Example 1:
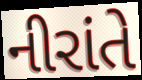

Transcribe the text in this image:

નીરાંતે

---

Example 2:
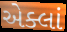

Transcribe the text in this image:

એક્લાં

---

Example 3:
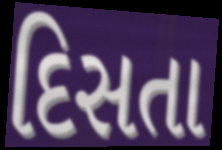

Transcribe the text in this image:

દિસતા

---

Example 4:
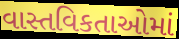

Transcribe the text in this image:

વાસ્તવિકતાઓમાં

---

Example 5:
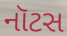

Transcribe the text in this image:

નૉટસ